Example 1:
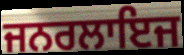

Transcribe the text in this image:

ਜਨਰਲਾਇਜ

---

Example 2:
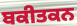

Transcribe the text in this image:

ਬਕੀਤਕਨ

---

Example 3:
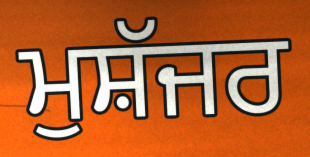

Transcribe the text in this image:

ਮੁਸ਼ੱਜਰ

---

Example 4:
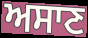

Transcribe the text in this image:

ਅਸਾਣ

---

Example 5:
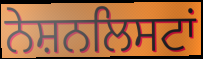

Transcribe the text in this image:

ਨੇਸ਼ਨਲਿਸਟਾਂ